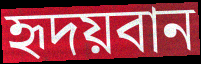
হৃদয়বান